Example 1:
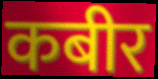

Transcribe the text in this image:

कबीर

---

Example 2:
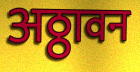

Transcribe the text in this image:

अठ्ठावन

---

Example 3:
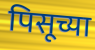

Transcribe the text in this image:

पिसूच्या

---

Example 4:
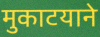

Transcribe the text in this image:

मुकाटयाने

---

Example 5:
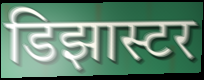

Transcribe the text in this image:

डिझास्टर